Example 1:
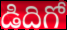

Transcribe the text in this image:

డిదిగో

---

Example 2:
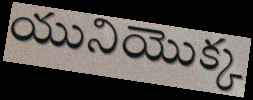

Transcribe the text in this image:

యునియొక్క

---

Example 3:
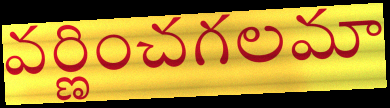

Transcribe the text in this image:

వర్ణించగలమా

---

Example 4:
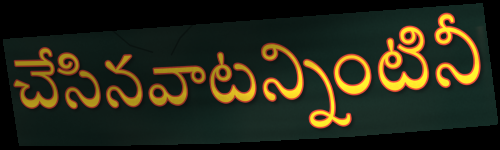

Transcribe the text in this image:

చేసినవాటన్నింటినీ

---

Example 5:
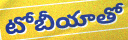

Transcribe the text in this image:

టోబీయాతో